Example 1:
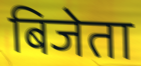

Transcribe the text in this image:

बिजेता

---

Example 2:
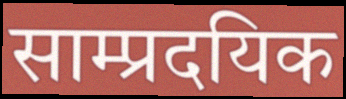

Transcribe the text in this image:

साम्प्रदयिक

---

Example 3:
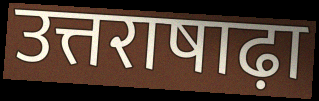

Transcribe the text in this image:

उत्तराषाढ़ा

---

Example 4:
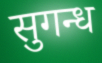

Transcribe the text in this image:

सुगन्ध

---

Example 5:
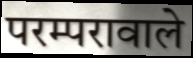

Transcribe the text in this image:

परम्परावाले